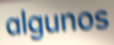
algunos